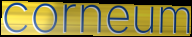
corneum